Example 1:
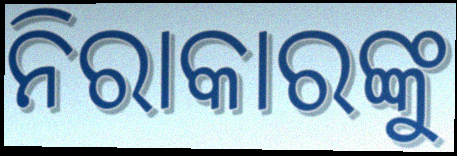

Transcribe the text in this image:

ନିରାକାରଙ୍କୁ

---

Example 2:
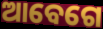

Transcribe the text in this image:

ଆବେଗେ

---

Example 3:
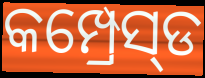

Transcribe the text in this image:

କମ୍ପ୍ରେସ୍‌ଡ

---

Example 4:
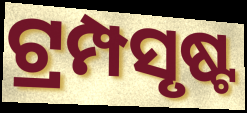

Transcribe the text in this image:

ଟ୍ରମ୍ପସୃଷ୍ଟ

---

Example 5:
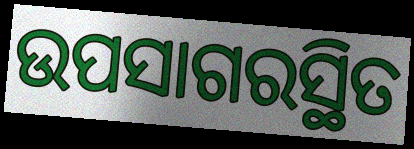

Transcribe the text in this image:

ଉପସାଗରସ୍ଥିତ